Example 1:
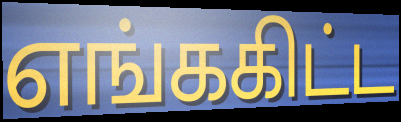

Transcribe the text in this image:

எங்ககிட்ட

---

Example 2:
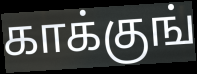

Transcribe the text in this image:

காக்குங்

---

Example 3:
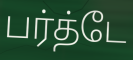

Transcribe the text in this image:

பர்த்டே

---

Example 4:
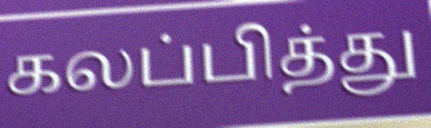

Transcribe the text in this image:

கலப்பித்து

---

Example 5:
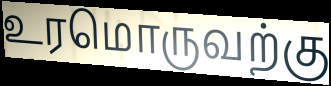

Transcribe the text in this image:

உரமொருவற்கு